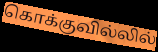
கொக்குவில்லில்